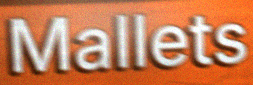
Mallets